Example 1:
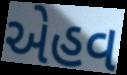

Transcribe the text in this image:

એહવ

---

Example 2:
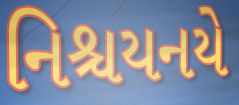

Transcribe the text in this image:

નિશ્ચયનયે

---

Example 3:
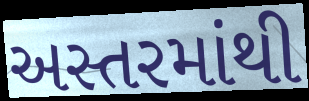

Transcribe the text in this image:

અસ્તરમાંથી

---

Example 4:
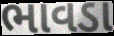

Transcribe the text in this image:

ભાવડા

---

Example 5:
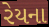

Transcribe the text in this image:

રેયના